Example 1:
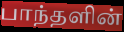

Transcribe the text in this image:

பாந்தளின்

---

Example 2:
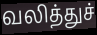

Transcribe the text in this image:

வலித்துச்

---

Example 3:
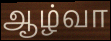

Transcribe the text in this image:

ஆழ்வா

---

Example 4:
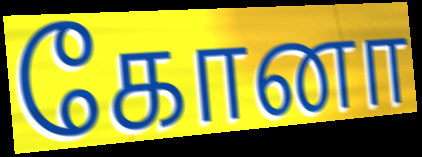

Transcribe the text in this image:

கோனா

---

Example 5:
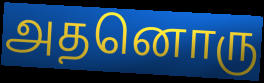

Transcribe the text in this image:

அதனொரு